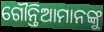
ଗୌନ୍ତିଆମାନଙ୍କୁ